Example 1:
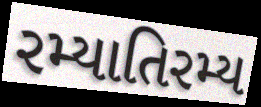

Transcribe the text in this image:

રમ્યાતિરમ્ય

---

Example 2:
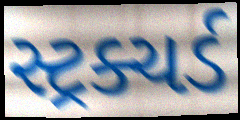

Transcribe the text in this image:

સ્ટ્રક્ચર્ડ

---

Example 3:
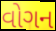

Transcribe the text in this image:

વોગન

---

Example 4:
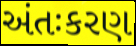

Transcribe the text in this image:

અંતઃકરણ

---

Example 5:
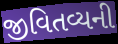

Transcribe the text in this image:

જીવિતવ્યની